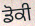
ਡੋਕੀ